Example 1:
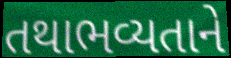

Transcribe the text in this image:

તથાભવ્યતાને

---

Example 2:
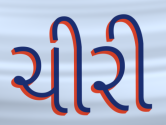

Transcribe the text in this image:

ચીરી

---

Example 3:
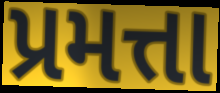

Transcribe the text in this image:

પ્રમત્તા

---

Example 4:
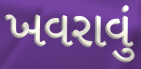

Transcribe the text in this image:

ખવરાવું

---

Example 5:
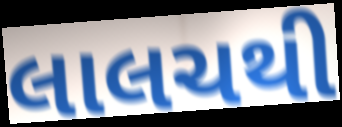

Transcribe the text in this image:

લાલચથી